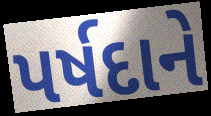
પર્ષદાને